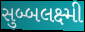
સુબ્બલક્ષ્મી